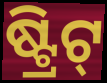
ଷ୍ଟ୍ରିଟ୍